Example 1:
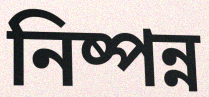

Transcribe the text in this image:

নিষ্পন্ন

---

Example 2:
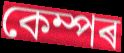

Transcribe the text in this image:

কেম্পৰ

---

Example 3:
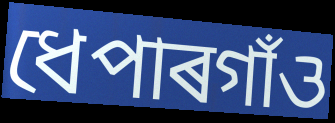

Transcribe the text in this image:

ধেপাৰগাঁও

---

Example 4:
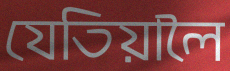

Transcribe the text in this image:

যেতিয়ালৈ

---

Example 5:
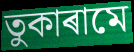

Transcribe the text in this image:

তুকাৰামে